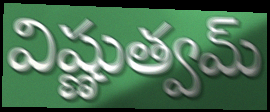
విష్ణుత్వమ్